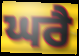
ਘਰੈ